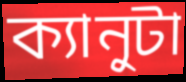
ক্যানুটা